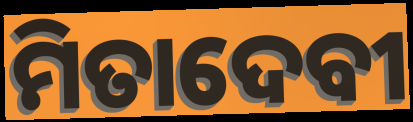
ମିତାଦେବୀ